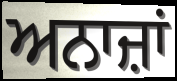
ਅਨਾਜ਼ਾਂ